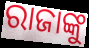
ରାଜାଙ୍କୁ